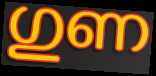
ഗുണ